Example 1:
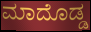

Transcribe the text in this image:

ಮಾದೊಡ್ಡ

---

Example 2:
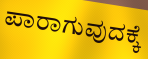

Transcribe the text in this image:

ಪಾರಾಗುವುದಕ್ಕೆ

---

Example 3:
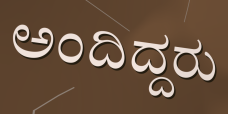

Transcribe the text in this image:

ಅಂದಿದ್ದರು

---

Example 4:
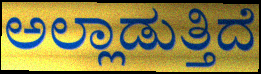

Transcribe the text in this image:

ಅಲ್ಲಾಡುತ್ತಿದೆ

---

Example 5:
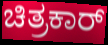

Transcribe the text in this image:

ಚಿತ್ರಕಾರ್